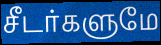
சீடர்களுமே